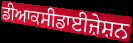
ਡੀਆਕਸੀਡਾਈਜ਼ੇਸ਼ਨ